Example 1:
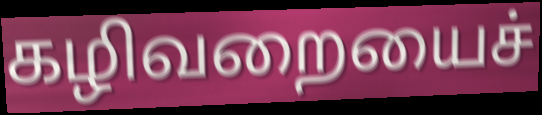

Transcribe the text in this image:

கழிவறையைச்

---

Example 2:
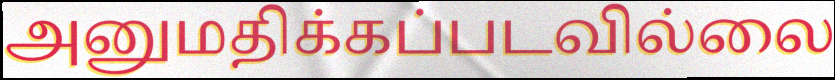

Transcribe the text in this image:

அனுமதிக்கப்படவில்லை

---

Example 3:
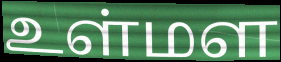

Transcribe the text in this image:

உள்மள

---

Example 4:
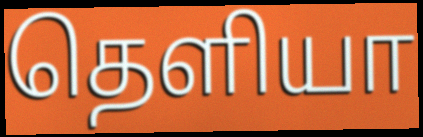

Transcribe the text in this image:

தெளியா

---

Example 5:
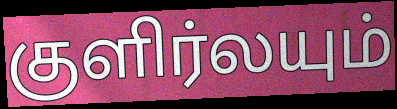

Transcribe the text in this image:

குளிர்லயும்